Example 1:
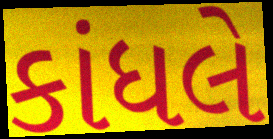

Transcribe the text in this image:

કાંધલે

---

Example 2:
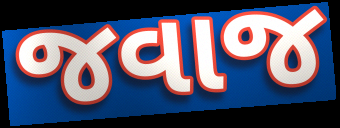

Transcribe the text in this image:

જવાજ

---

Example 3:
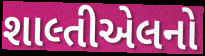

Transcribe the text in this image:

શાલ્તીએલનો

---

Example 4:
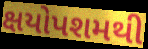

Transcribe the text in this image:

ક્ષયોપશમથી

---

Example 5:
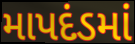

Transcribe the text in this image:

માપદંડમાં